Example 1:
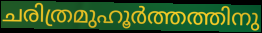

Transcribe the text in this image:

ചരിത്രമുഹൂർത്തത്തിനു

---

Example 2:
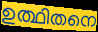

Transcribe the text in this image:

ഉത്ഥിതനെ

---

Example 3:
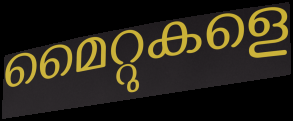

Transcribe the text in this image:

മൈറ്റുകളെ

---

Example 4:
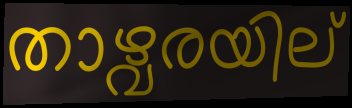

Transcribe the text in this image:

താഴ്വരയില്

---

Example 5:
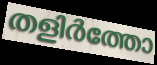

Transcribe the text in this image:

തളിർത്തോ